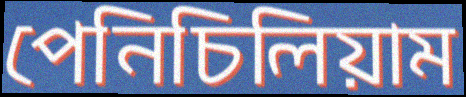
পেনিচিলিয়াম